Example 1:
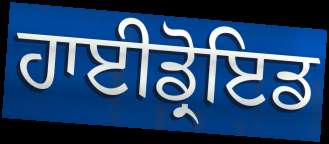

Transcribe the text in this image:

ਹਾਈਡ੍ਰੋਇਡ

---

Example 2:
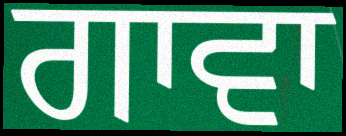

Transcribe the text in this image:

ਗਾਵਾ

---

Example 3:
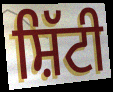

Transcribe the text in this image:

ਸ਼ਿੱਟੀ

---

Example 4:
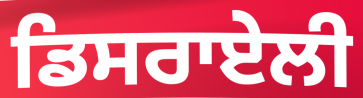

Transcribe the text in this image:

ਡਿਸਰਾਏਲੀ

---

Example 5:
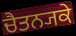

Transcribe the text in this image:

ਚੈਤਨ੍ਯਕੇ